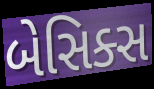
બેસિક્સ